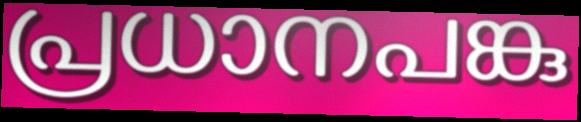
പ്രധാനപങ്കു